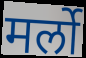
मर्लो